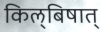
किल्बिषात्